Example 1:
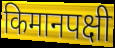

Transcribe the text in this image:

किमानपक्षी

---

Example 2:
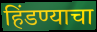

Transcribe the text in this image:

हिंडण्याचा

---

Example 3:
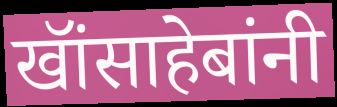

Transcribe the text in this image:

खॉंसाहेबांनी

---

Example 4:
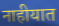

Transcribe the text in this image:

नाहीयात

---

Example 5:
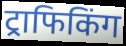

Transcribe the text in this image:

ट्राफिकिंग